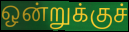
ஒன்றுக்குச்